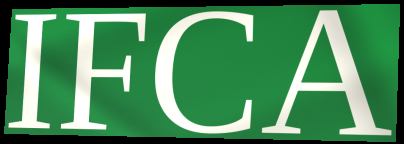
IFCA